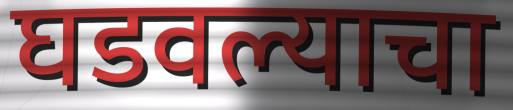
घडवल्याचा